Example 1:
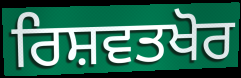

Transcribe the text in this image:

ਰਿਸ਼ਵਤਖੋਰ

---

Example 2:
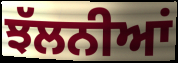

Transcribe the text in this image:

ਝੱਲਨੀਆਂ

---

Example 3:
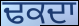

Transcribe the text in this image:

ਢਕਦਾ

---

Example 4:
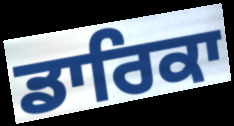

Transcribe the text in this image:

ਡਾਰਿਕਾ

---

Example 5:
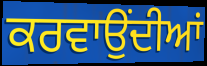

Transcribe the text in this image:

ਕਰਵਾਉਂਦੀਆਂ